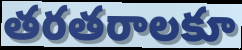
తరతరాలకూ